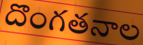
దొంగతనాల